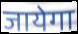
जायेगा